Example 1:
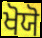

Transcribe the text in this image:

ਖੋਯੋ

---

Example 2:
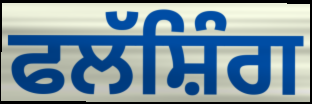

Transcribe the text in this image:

ਫਲੱਸ਼ਿੰਗ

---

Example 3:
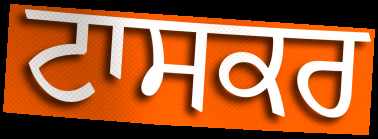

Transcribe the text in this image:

ਟਾਸਕਰ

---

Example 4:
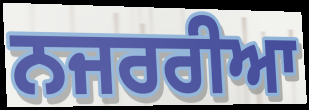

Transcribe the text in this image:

ਨਜਰਰੀਆ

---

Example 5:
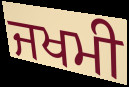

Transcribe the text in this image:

ਜਖਮੀ